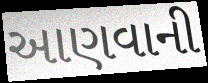
આણવાની